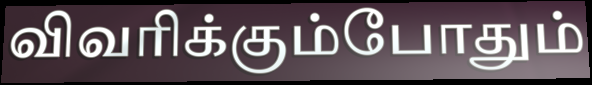
விவரிக்கும்போதும்